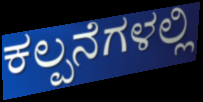
ಕಲ್ಪನೆಗಳಲ್ಲಿ